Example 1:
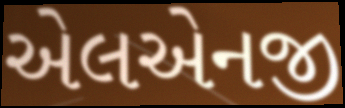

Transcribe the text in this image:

એલએનજી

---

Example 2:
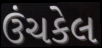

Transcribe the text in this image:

ઉંચકેલ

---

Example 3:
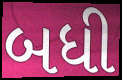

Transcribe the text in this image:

બધી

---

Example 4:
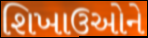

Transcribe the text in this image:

શિખાઉઓને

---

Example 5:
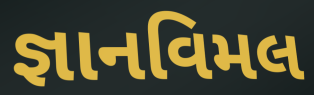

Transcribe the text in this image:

જ્ઞાનવિમલ